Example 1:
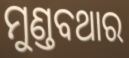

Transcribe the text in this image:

ମୁଣ୍ଡବଥାର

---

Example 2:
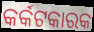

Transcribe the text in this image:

କର୍କଟକାରକ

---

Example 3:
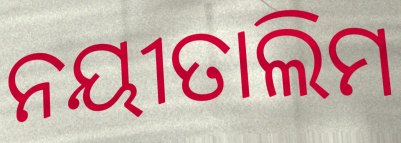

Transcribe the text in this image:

ନୟୀତାଲିମ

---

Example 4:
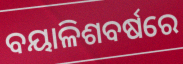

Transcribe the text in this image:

ବୟାଳିଶବର୍ଷରେ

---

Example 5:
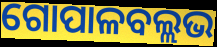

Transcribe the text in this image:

ଗୋପାଳବଲ୍ଲଭ